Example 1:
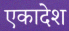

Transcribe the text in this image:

एकादेश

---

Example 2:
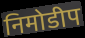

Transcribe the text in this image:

निमोडीप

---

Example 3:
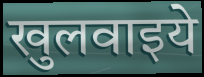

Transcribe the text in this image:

खुलवाइये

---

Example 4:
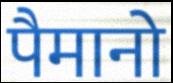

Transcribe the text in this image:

पैमानो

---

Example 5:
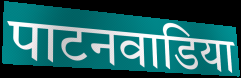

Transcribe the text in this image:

पाटनवाडिया